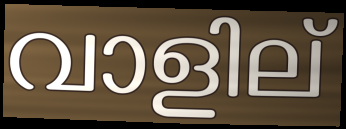
വാളില്